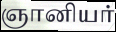
ஞானியர்